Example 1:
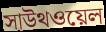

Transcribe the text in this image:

সাউথওয়েল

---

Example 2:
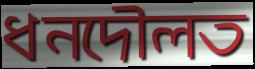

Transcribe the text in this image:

ধনদৌলত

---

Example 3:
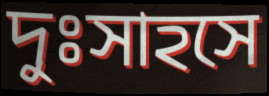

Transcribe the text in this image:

দুঃসাহসে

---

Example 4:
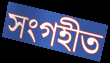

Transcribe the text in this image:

সংগহীত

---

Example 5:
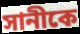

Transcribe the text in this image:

সানীকে